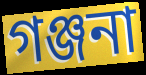
গঞ্জনা